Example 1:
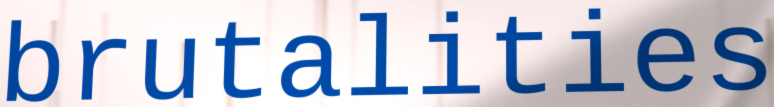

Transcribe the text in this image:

brutalities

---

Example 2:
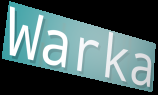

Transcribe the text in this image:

Warka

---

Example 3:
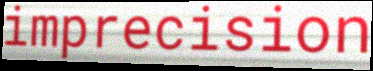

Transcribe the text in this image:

imprecision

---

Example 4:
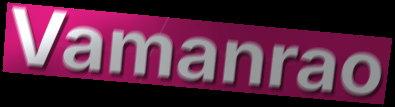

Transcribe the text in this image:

Vamanrao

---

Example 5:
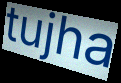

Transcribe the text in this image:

tujha